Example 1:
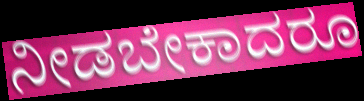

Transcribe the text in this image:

ನೀಡಬೇಕಾದರೂ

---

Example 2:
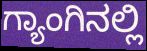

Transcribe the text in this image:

ಗ್ಯಾಂಗಿನಲ್ಲಿ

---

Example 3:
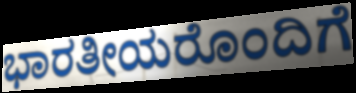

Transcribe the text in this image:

ಭಾರತೀಯರೊಂದಿಗೆ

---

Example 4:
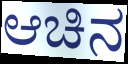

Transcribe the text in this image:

ಆಚಿನ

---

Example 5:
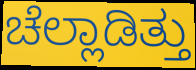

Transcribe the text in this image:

ಚೆಲ್ಲಾಡಿತ್ತು